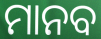
ମାନବ